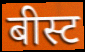
बीस्ट